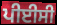
ਪੀਈਸੀ